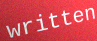
written